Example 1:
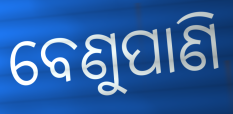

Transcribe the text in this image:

ବେଣୁପାଣି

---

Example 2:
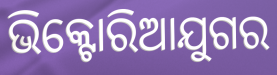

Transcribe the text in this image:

ଭିକ୍ଟୋରିଆଯୁଗର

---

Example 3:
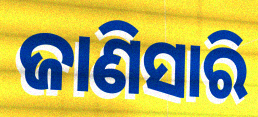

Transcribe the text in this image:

ଜାଣିସାରି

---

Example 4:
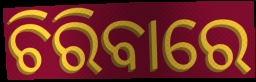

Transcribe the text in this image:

ଚିରିବାରେ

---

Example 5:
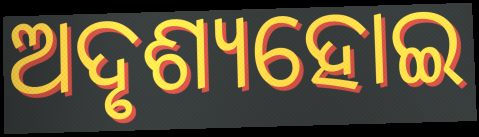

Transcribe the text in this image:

ଅଦୃଶ୍ୟହୋଇ